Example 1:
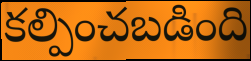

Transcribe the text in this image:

కల్పించబడింది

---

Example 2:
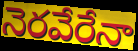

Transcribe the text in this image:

నెరవేరేనా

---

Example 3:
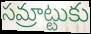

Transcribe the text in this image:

సమ్రాట్టుకు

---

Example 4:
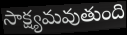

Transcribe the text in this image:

సాక్ష్యమవుతుంది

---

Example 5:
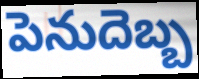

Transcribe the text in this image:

పెనుదెబ్బ